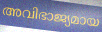
അവിഭാജ്യമായ